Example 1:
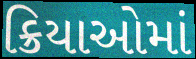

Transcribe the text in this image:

ક્રિયાઓમાં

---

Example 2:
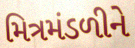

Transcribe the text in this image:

મિત્રમંડળીને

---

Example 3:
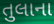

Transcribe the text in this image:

તુલાના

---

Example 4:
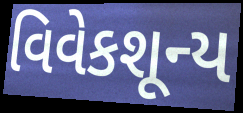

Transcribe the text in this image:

વિવેકશૂન્ય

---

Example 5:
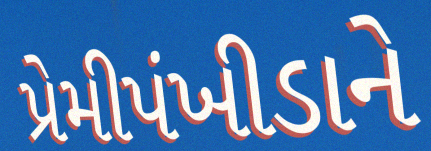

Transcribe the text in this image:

પ્રેમીપંખીડાને